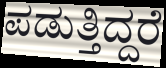
ಪಡುತ್ತಿದ್ದರೆ